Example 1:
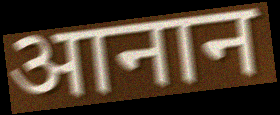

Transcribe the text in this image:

आनान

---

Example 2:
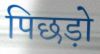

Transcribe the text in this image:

पिछड़ो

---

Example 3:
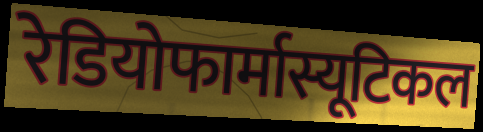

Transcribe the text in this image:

रेडियोफार्मास्यूटिकल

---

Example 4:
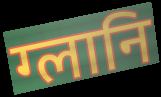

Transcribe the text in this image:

ग्लानि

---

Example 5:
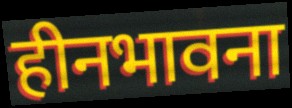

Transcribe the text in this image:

हीनभावना